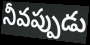
నీవప్పుడు